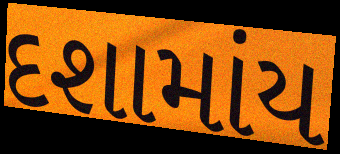
દશામાંય